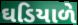
ઘડિયાળે